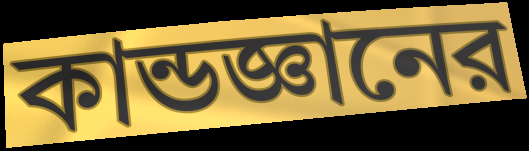
কান্ডজ্ঞানের